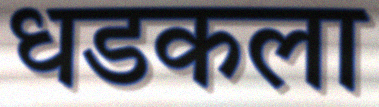
धडकला